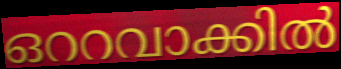
ഒററവാക്കിൽ